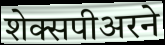
शेक्सपीअरने